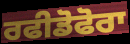
ਰਫੀਡੋਫੋਰਾ